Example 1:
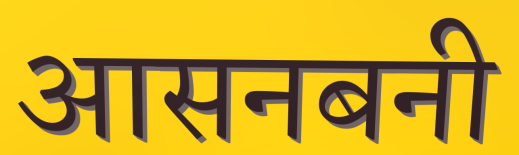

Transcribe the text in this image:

आसनबनी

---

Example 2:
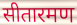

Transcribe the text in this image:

सीतारमण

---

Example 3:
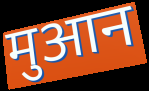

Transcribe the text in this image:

मुआन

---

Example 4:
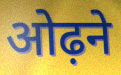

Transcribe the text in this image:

ओढ़ने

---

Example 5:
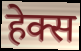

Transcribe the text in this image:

हेक्स